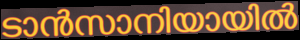
ടാൻസാനിയായിൽ